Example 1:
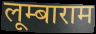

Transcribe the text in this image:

लूम्बाराम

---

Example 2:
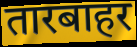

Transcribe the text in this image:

तारबाहर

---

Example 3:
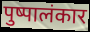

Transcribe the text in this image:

पुष्पालंकार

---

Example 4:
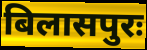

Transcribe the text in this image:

बिलासपुरः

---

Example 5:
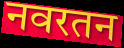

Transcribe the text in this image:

नवरतन